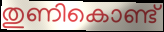
തുണികൊണ്ട്